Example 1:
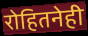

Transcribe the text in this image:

रोहितनेही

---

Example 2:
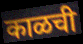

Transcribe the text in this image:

काळची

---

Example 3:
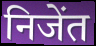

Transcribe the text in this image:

निजेंत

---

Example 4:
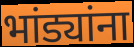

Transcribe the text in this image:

भांड्यांना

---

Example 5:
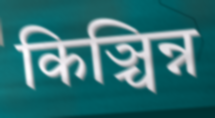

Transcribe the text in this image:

किञ्चिन्न